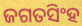
ଜଗତସିଂହ